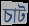
চাট